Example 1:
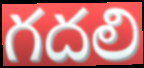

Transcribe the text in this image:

గదలి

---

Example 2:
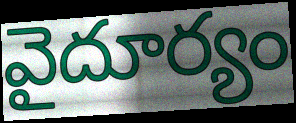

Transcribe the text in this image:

వైదూర్యం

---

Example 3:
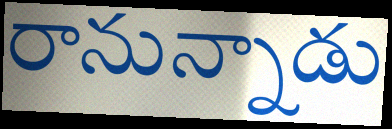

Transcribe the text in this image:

రానున్నాడు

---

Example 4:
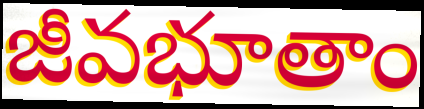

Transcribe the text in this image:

జీవభూతాం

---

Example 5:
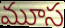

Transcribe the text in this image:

మూస